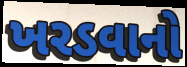
ખરડવાનો